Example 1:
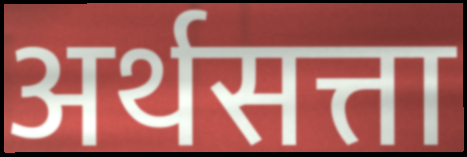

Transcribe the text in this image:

अर्थसत्ता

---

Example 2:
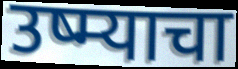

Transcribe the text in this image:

उष्म्याचा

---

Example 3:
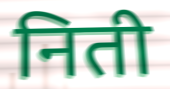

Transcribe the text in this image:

निती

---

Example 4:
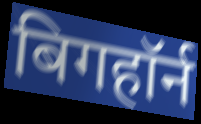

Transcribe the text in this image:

बिगहॉर्न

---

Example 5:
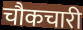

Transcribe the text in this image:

चौकचारी